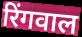
रिंगवाल